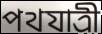
পথযাত্রী